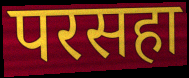
परसहा